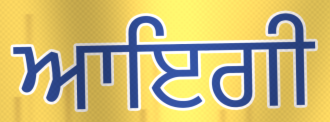
ਆਇਗੀ